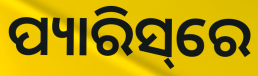
ପ୍ୟାରିସ୍‌ରେ